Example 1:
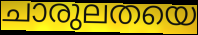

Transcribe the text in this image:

ചാരുലതയെ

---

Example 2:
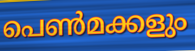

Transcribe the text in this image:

പെൺമക്കളും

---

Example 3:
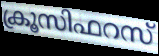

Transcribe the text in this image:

ക്രൂസിഫറസ്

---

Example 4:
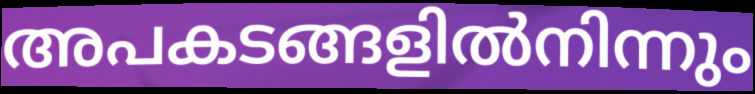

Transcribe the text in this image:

അപകടങ്ങളിൽനിന്നും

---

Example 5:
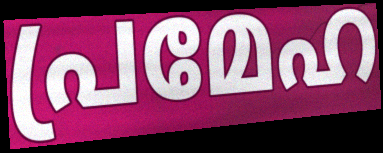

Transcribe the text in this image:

പ്രമേഹ